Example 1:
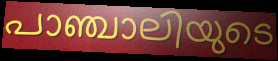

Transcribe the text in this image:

പാഞ്ചാലിയുടെ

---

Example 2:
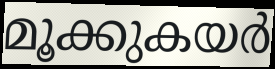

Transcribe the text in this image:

മൂക്കുകയർ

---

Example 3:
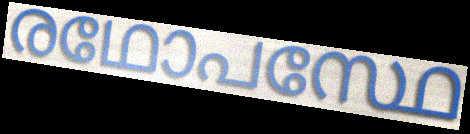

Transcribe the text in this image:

രഥോപസ്ഥേ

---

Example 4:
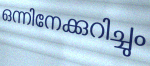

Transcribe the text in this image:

ഒന്നിനേക്കുറിച്ചും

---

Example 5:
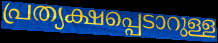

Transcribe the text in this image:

പ്രത്യക്ഷപ്പെടാറുള്ള